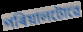
পৰিয়ালটোৱে